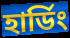
হার্ডিং